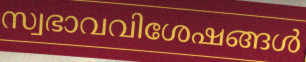
സ്വഭാവവിശേഷങ്ങൾ